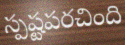
స్పష్టపరచింది